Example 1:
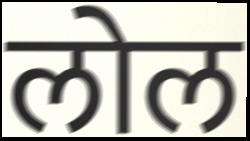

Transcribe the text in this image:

लोल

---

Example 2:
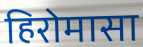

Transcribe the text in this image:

हिरोमासा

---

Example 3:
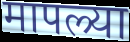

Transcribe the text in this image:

मापल्या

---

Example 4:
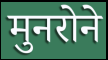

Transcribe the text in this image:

मुनरोने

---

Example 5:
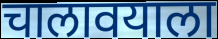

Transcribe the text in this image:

चालावयाला